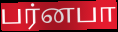
பர்னபா